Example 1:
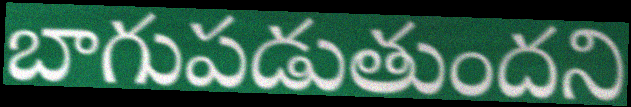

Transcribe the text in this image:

బాగుపడుతుందని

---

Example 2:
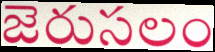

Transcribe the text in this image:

జెరుసలం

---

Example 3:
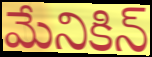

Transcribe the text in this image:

మేనికిన్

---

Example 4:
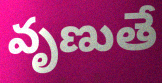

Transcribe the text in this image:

వృణుతే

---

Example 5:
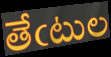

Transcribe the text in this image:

తేఁటుల